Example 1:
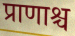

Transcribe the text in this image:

प्राणाश्च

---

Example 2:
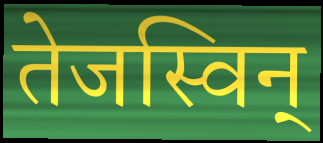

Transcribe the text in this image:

तेजस्विन्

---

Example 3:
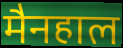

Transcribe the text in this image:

मैनहाल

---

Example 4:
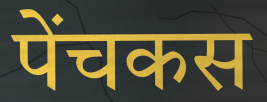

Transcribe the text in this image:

पेंचकस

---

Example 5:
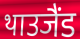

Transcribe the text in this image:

थाउजैंड